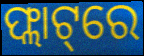
ଫ୍ଲାଟ୍‌ରେ